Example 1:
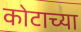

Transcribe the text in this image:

कोटाच्या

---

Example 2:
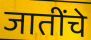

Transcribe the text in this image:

जातींचे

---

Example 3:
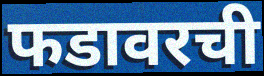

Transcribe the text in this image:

फडावरची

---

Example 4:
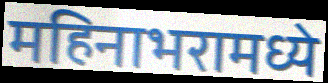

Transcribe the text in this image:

महिनाभरामध्ये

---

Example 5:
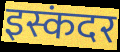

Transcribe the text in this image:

इस्कंदर